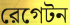
রেগেটন